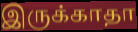
இருக்காதா